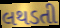
લથડતી